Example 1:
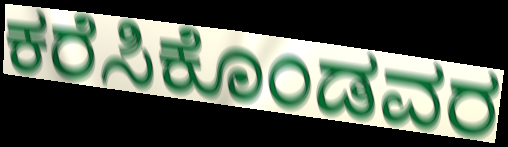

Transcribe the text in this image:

ಕರೆಸಿಕೊಂಡವರ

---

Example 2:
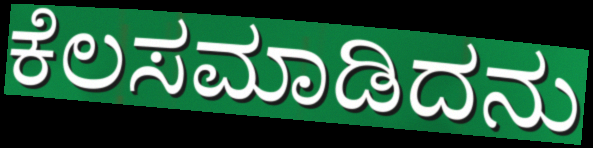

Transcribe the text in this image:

ಕೆಲಸಮಾಡಿದನು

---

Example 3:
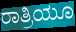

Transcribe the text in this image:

ರಾತ್ರಿಯೂ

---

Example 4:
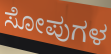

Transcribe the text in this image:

ಸೋಪುಗಳ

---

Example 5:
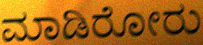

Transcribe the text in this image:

ಮಾಡಿರೋರು